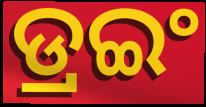
ଡ୍ରଇଂ